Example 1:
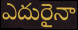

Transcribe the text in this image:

ఎదురైనా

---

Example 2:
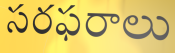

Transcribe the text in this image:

సరఫరాలు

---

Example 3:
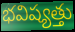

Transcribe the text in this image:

భవిష్యత్తు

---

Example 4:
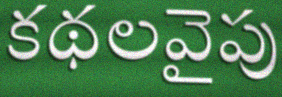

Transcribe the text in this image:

కథలవైపు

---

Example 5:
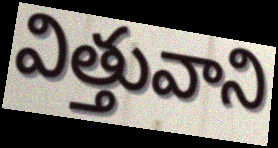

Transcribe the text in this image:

విత్తువాని